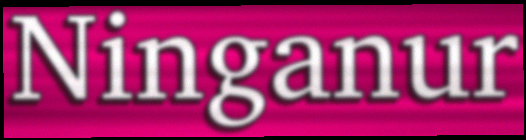
Ninganur